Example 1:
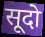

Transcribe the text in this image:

सूदो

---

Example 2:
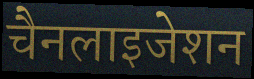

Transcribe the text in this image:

चैनलाइजेशन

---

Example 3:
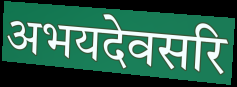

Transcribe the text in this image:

अभयदेवसरि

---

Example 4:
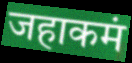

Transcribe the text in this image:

जहाकमं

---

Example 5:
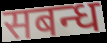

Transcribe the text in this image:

सबन्ध